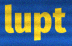
lupt